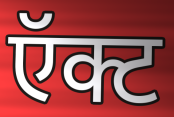
ऍक्ट